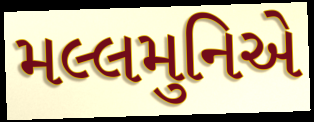
મલ્લમુનિએ